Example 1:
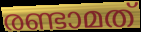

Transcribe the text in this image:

രണ്ടാമത്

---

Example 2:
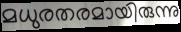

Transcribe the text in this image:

മധുരതരമായിരുന്നു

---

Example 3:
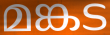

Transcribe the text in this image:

മങ്കട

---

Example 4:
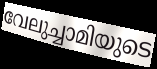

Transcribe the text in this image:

വേലുച്ചാമിയുടെ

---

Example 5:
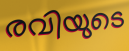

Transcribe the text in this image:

രവിയുടെ